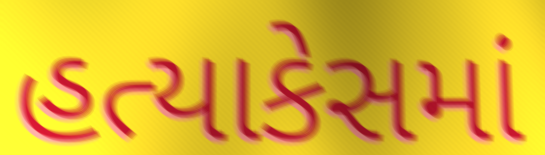
હત્યાકેસમાં